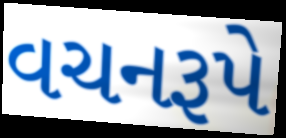
વચનરૂપે